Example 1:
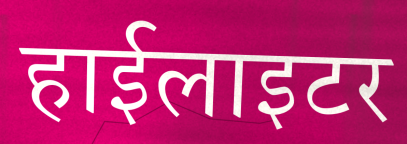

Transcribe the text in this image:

हाईलाइटर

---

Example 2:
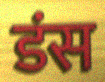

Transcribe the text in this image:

डंस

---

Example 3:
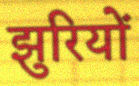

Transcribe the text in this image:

झुरियों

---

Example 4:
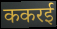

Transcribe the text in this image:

ककरई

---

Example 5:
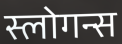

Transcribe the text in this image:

स्लोगन्स